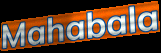
Mahabala